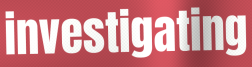
investigating